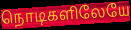
நொடிகளிலேயே